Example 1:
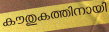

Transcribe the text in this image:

കൗതുകത്തിനായി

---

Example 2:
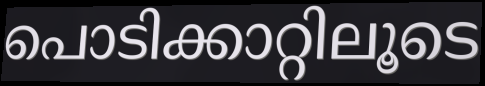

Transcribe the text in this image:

പൊടിക്കാറ്റിലൂടെ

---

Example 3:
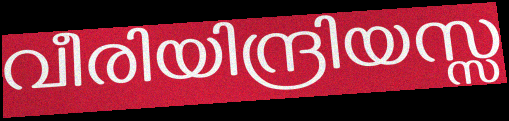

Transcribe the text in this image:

വീരിയിന്ദ്രിയസ്സ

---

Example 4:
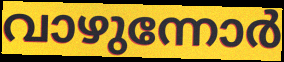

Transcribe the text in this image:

വാഴുന്നോർ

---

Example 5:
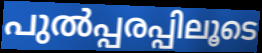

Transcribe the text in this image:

പുൽപ്പരപ്പിലൂടെ